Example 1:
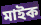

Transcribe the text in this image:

মাইক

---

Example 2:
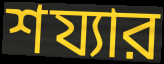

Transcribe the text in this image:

শয্যার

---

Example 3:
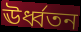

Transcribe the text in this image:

ঊর্ধ্বতন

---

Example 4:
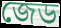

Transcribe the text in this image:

জেড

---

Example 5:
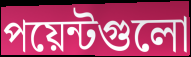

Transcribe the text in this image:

পয়েন্টগুলো